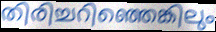
തിരിച്ചറിഞ്ഞെങ്കിലും